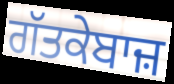
ਗੱਤਕੇਬਾਜ਼